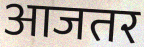
आजतर